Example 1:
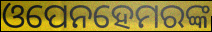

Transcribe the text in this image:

ଓପେନହେମରଙ୍କ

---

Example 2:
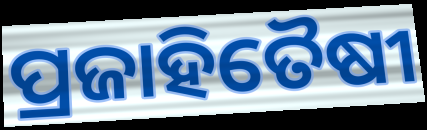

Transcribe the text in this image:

ପ୍ରଜାହିତୈଷୀ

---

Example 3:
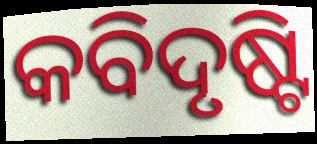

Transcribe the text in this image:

କବିଦୃଷ୍ଟି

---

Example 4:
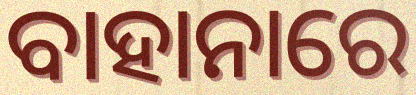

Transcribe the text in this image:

ବାହାନାରେ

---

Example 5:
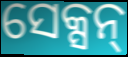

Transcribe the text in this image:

ସେକ୍ସନ୍